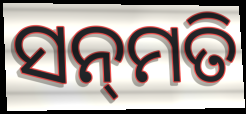
ସନ୍‌ମତି